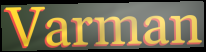
Varman